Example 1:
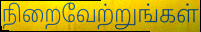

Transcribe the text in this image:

நிறைவேற்றுங்கள்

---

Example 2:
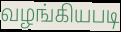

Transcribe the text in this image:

வழங்கியபடி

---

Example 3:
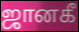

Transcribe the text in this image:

ஜானகீ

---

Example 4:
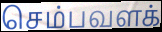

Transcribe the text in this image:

செம்பவளக்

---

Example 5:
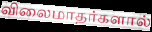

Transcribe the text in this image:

விலைமாதர்களால்